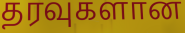
தரவுகளான